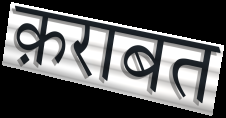
क़राबत